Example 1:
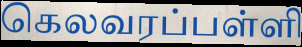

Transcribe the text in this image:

கெலவரப்பள்ளி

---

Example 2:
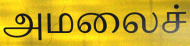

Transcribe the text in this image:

அமலைச்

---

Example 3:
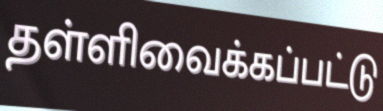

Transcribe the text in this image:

தள்ளிவைக்கப்பட்டு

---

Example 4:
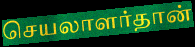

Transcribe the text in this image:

செயலாளர்தான்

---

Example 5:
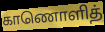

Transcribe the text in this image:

காணொளித்